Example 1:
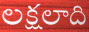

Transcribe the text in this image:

లక్షలాది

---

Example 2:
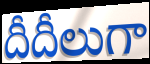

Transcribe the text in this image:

దీదీలుగా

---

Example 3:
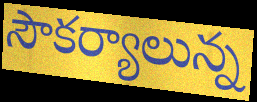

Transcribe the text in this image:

సౌకర్యాలున్న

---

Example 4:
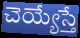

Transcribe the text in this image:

చెయ్యేస్తే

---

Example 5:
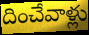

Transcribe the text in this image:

దించేవాళ్లు